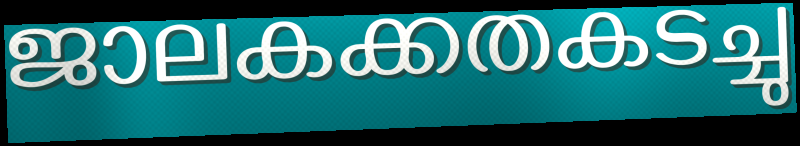
ജാലകക്കതകടച്ചു